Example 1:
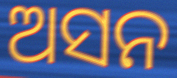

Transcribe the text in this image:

ଅସନ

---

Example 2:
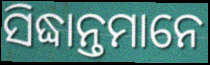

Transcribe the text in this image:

ସିଦ୍ଧାନ୍ତମାନେ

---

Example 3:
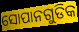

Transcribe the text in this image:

ସୋପାନଗୁଡିକ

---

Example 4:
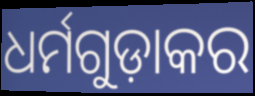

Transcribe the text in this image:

ଧର୍ମଗୁଡ଼ାକର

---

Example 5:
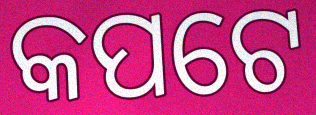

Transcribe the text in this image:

କପଟେ